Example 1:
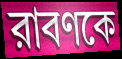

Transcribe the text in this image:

রাবণকে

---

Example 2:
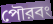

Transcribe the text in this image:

পৌরবং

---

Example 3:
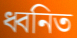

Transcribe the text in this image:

ধ্বনিত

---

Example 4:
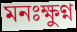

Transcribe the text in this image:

মনঃক্ষুণ্ন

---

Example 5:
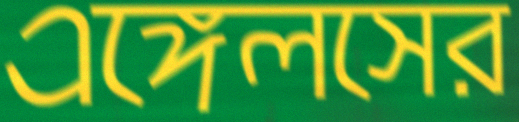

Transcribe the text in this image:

এঙ্গেলসের